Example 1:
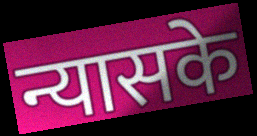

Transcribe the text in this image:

न्यासके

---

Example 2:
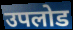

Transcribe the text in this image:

उपलोड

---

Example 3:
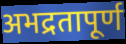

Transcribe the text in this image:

अभद्रतापूर्ण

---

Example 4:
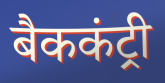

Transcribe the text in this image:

बैककंट्री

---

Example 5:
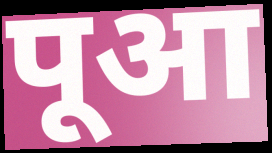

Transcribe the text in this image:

पूआ